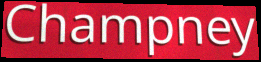
Champney